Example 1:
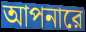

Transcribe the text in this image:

আপনারে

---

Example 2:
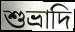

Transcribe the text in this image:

শুভ্রাদি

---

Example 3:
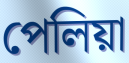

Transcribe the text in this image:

পেলিয়া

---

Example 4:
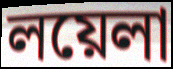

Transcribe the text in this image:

লয়েলা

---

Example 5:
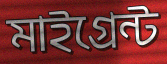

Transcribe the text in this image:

মাইগ্রেন্ট